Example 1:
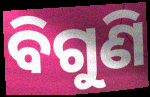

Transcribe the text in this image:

ବିଗୁଣି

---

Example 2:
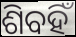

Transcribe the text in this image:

ଶିବହିଁ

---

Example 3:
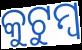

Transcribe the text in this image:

କୁଟୁମ୍ଵ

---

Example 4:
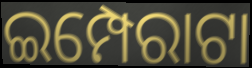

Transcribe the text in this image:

ଇମ୍ପେରାଟା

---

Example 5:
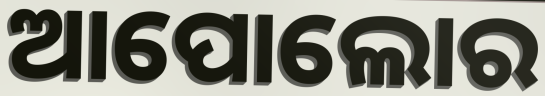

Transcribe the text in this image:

ଆପୋଲୋର